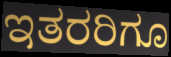
ಇತರರಿಗೂ